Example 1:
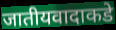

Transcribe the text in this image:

जातीयवादाकडे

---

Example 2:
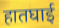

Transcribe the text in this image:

हातघाई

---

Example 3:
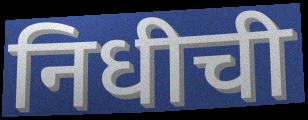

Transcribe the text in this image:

निधीची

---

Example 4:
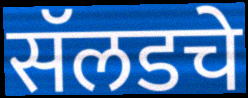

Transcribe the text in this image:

सॅलडचे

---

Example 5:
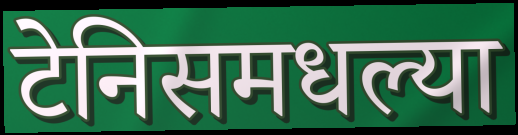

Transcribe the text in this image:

टेनिसमधल्या